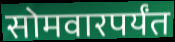
सोमवारपर्यंत